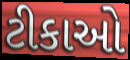
ટીકાઓ